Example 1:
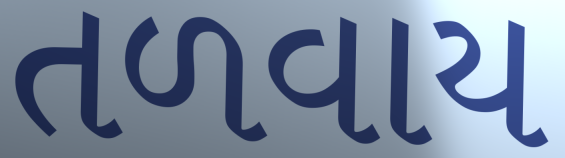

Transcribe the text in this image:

તળવાય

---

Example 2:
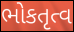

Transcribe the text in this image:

ભોકતૃત્વ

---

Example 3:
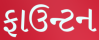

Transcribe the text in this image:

ફાઉન્ટન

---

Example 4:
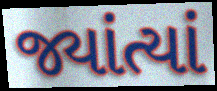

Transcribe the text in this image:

જ્યાંત્યાં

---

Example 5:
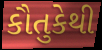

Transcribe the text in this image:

કૌતુકેથી